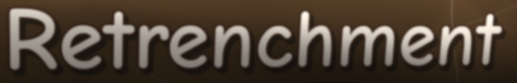
Retrenchment